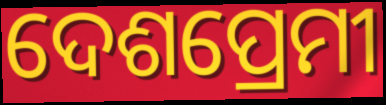
ଦେଶପ୍ରେମୀ